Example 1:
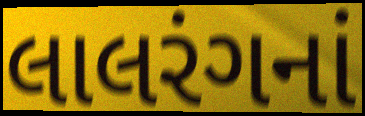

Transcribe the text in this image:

લાલરંગનાં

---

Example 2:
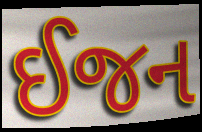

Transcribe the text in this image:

ઈજન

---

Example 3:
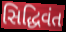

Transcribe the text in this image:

સિદ્ધિવંત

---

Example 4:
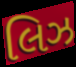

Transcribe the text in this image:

લિઝ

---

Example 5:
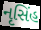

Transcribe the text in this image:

નૃસિંહ